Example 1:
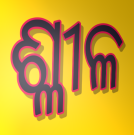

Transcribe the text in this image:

ଶ୍ଳୀଳ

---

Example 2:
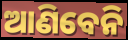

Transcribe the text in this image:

ଆଣିବେନି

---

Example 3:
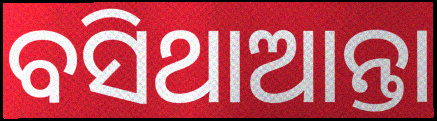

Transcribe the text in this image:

ବସିଥାଆନ୍ତା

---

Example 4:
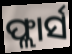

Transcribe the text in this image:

ଫ୍ଲାର୍ସ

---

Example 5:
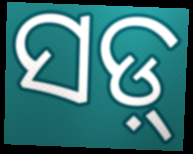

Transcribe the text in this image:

ସଡ଼୍